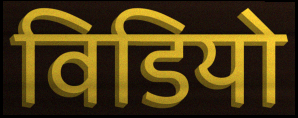
विडियो